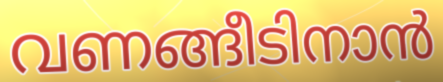
വണങ്ങീടിനാൻ